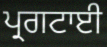
ਪ੍ਰਗਟਾਈ